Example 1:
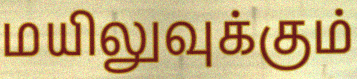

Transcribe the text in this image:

மயிலுவுக்கும்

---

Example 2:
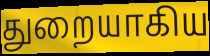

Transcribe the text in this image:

துறையாகிய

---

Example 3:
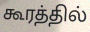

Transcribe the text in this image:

கூரத்தில்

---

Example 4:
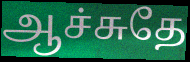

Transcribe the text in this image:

ஆச்சுதே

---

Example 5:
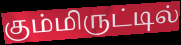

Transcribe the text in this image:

கும்மிருட்டில்